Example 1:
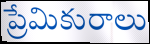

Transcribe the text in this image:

ప్రేమికురాలు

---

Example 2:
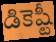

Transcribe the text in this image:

డికెష్టీ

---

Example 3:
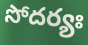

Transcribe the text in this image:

సోదర్యః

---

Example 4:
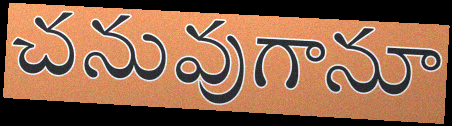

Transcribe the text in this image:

చనువుగానూ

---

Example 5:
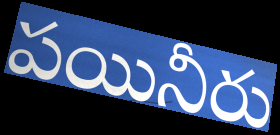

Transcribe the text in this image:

పయినీరు